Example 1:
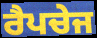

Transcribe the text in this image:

ਰੈਪਚੇਜ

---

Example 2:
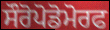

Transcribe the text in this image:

ਸੌਰੋਪੋਡੋਮੋਰਫ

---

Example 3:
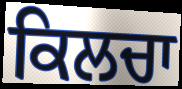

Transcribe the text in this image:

ਕਿਲਚਾ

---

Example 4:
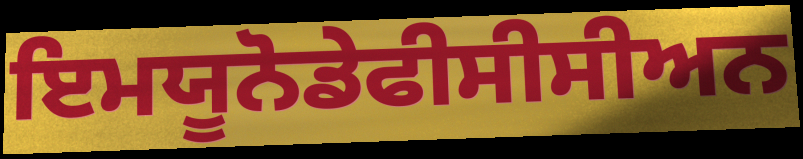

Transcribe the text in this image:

ਇਮਯੂਨੋਡੇਫੀਸੀਸੀਅਨ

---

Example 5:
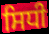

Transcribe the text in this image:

ਸਿਧੀ